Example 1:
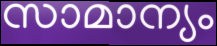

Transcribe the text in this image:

സാമാന്യം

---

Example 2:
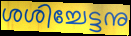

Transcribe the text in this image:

ശശിച്ചേട്ടനു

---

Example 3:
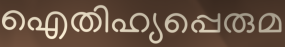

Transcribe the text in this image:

ഐതിഹ്യപ്പെരുമ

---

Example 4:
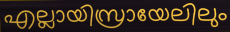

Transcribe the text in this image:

എല്ലായിസ്രായേലിലും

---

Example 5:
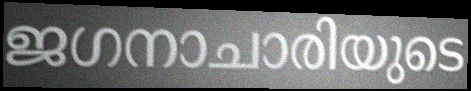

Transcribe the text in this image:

ജഗനാചാരിയുടെ